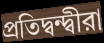
প্রতিদ্বন্দ্বীরা